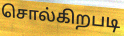
சொல்கிறபடி